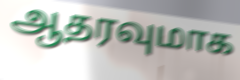
ஆதரவுமாக